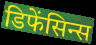
डिफेंसिन्स